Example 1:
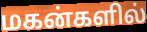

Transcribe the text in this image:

மகன்களில்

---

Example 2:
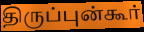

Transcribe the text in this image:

திருப்புன்கூர்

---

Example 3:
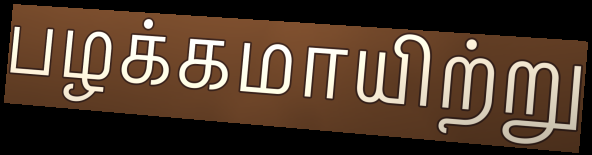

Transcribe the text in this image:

பழக்கமாயிற்று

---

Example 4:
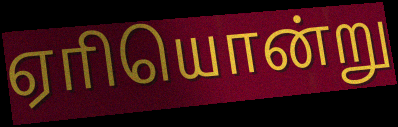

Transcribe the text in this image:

ஏரியொன்று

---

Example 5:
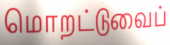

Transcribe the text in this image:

மொறட்டுவைப்